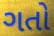
ગતો